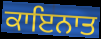
ਕਾਇਨਾਤ